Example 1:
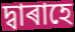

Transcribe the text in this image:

দ্বাৰাহে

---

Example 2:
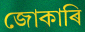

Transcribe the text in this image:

জোকাৰি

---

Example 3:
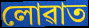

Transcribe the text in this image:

লোৱাত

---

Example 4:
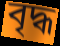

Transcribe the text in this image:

বৃদ্ধ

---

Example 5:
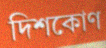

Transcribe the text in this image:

দিশকোণ